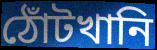
ঠোঁটখানি